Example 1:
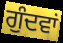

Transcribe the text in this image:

ਗੁੰਦਵਾਂ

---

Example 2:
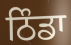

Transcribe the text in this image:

ਠਿੰਡਾ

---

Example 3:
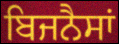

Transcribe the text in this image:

ਬਿਜਨੈਸਾਂ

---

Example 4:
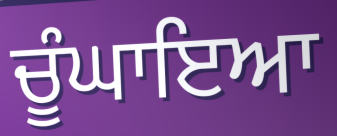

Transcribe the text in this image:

ਚੂੰਘਾਇਆ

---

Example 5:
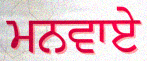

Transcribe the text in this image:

ਮਨਵਾਏ